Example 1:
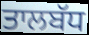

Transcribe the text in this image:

ਤਾਲਬੱਧ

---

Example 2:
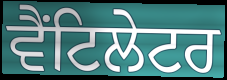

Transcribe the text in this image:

ਵੈਂਟਿਲੇਟਰ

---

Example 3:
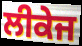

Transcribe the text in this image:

ਲੀਕੇਜ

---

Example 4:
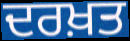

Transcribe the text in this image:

ਦਰਖ਼ਤ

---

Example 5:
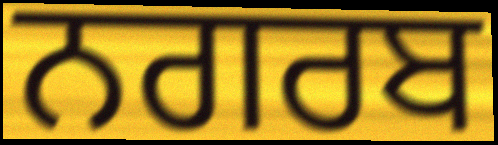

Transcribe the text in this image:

ਨਗਰਬ